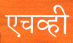
एचव्ही